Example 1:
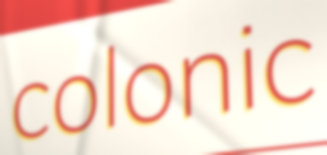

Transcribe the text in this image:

colonic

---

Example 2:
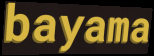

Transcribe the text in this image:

bayama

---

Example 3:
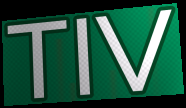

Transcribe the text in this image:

TIV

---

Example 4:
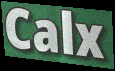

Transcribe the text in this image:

Calx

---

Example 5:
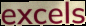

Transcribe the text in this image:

excels